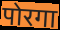
पोरगा